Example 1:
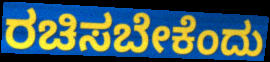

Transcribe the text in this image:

ರಚಿಸಬೇಕೆಂದು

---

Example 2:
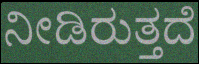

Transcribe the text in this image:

ನೀಡಿರುತ್ತದೆ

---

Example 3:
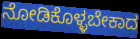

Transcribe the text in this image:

ನೋಡಿಕೊಳ್ಳಬೇಕಾದ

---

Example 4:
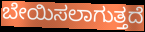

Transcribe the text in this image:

ಬೇಯಿಸಲಾಗುತ್ತದೆ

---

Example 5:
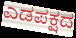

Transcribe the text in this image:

ಎಡಪಕ್ಷದ